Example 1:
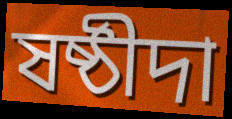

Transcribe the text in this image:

ষষ্ঠীদা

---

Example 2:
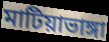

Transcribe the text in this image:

মাটিয়াভাঙ্গা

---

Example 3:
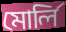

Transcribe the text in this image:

মোর্লি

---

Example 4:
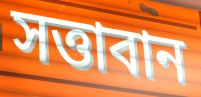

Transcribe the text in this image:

সত্তাবান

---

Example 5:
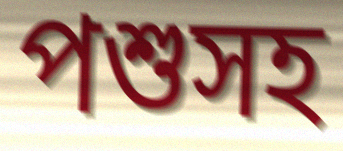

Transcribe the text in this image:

পশুসহ